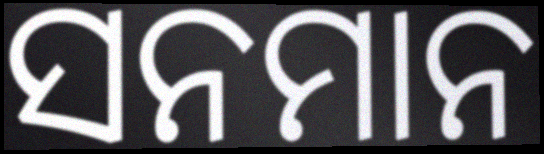
ସନମାନ